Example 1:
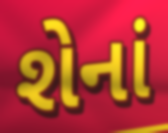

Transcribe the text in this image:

શેનાં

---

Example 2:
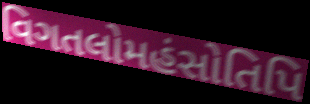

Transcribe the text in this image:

વિગતલોમહંસોતિપિ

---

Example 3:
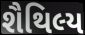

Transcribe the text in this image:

શૈથિલ્ય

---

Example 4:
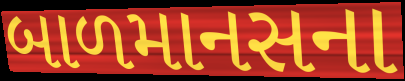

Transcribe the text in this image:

બાળમાનસના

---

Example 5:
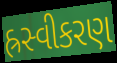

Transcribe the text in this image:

હ્રસ્વીકરણ